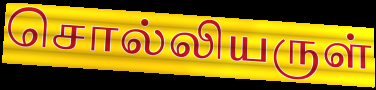
சொல்லியருள்